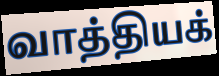
வாத்தியக்